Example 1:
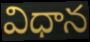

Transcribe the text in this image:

విధాన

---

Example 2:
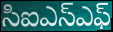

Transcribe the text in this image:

సిఐఎస్ఎఫ్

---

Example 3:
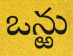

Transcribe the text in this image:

ఒన్ఱు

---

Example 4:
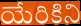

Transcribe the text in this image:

యేరికిని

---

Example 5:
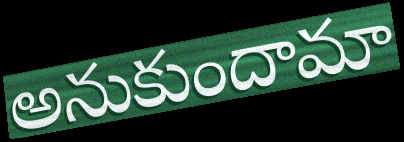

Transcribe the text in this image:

అనుకుందామా